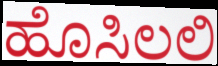
ಹೊಸಿಲಲಿ